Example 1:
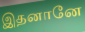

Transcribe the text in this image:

இதனானே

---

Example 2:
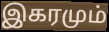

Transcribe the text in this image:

இகரமும்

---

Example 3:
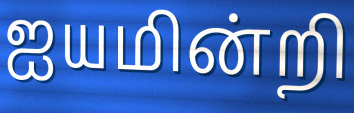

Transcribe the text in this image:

ஐயமின்றி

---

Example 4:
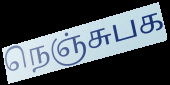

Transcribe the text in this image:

நெஞ்சுபக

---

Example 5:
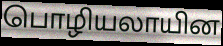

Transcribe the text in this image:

பொழியலாயின